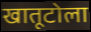
खातूटोला